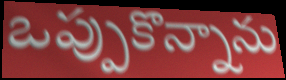
ఒప్పుకొన్నాను